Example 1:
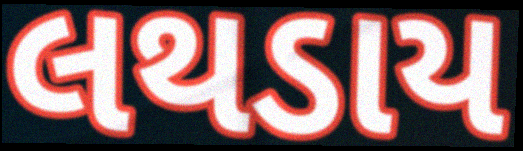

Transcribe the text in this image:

લથડાય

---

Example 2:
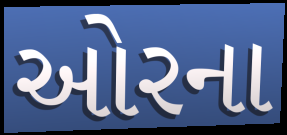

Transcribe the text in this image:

ઓરના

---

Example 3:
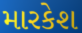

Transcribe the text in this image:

મારકેશ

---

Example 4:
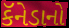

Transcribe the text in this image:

કૅનેડાનો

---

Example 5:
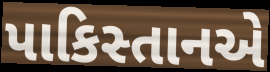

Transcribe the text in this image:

પાકિસ્તાનએ